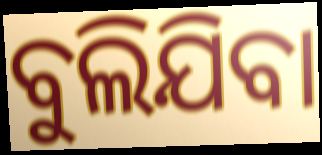
ବୁଲିଯିବା